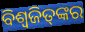
ବିଶ୍ଵଜିତ୍‌ଙ୍କର